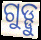
ଗୁଡ୍ଡୁ